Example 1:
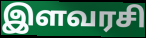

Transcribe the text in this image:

இளவரசி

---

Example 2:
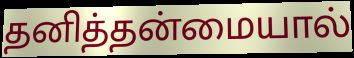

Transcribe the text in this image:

தனித்தன்மையால்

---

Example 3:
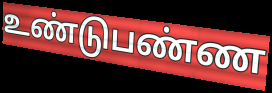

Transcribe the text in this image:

உண்டுபண்ண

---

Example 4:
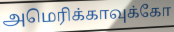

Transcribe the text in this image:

அமெரிக்காவுக்கோ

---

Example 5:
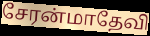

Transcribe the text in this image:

சேரன்மாதேவி